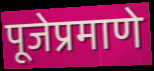
पूजेप्रमाणे